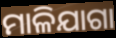
ମାଳିଯାଗା